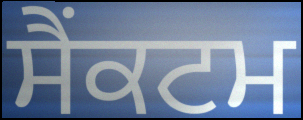
ਸੈੰਕਟਮ